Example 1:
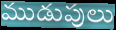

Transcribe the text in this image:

ముడుపులు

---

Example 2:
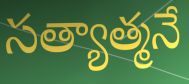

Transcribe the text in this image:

సత్యాత్మనే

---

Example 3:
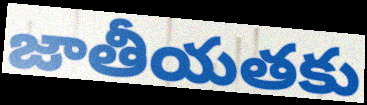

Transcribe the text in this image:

జాతీయతకు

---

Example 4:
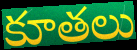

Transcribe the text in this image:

కూతలు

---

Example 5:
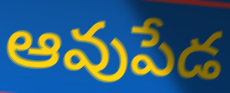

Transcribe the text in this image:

ఆవుపేడ